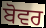
ਬੋਵਰ